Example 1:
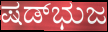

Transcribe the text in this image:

ಷಡ್‌ಭುಜ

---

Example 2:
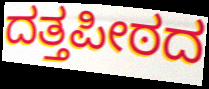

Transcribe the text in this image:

ದತ್ತಪೀಠದ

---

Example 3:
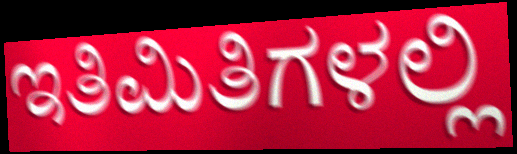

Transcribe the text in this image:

ಇತಿಮಿತಿಗಳಲ್ಲಿ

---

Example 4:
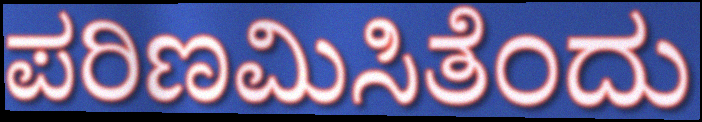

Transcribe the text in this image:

ಪರಿಣಮಿಸಿತೆಂದು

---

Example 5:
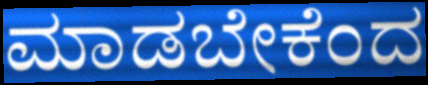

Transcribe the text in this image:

ಮಾಡಬೇಕೆಂದ